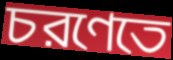
চরণেতে